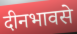
दीनभावसे